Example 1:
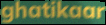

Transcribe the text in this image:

ghatikaar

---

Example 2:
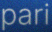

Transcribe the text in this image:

pari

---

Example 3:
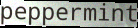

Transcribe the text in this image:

peppermint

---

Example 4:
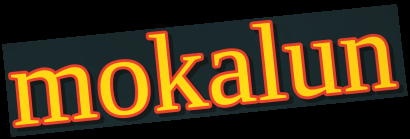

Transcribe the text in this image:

mokalun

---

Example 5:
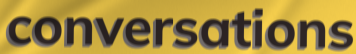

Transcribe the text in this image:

conversations